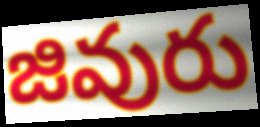
జివురు